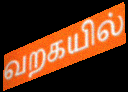
வறகயில்